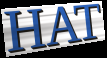
HAT